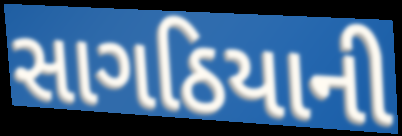
સાગઠિયાની